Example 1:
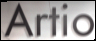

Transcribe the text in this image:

Artio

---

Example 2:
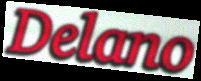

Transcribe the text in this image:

Delano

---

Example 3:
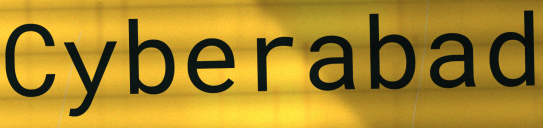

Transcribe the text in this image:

Cyberabad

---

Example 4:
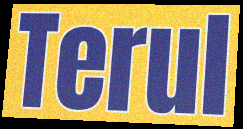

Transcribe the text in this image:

Terul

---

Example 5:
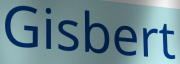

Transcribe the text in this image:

Gisbert